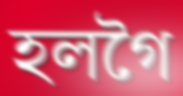
হলগৈ